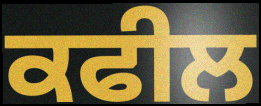
ਕਫੀਲ